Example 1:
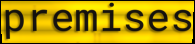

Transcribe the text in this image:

premises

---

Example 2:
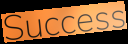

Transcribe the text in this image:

Success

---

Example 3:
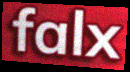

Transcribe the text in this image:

falx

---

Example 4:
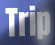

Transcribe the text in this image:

Trip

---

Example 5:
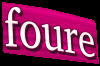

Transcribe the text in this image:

foure